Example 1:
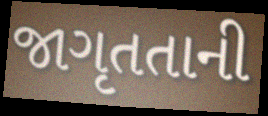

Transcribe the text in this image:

જાગૃતતાની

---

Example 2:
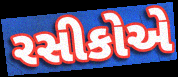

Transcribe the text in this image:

રસીકોએ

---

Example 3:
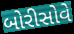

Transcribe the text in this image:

બોરીસોવે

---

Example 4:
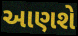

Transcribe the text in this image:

આણશે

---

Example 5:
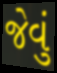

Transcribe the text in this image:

જેવું